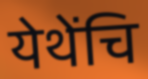
येथेंचि